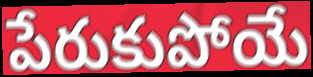
పేరుకుపోయే